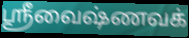
ஸ்ரீவைஷ்ணவக்